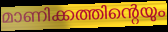
മാണിക്കത്തിന്റെയും